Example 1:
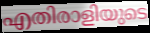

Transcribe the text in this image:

എതിരാളിയുടെ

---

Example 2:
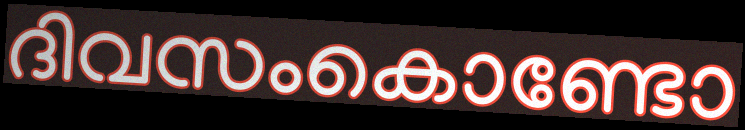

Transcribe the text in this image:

ദിവസംകൊണ്ടോ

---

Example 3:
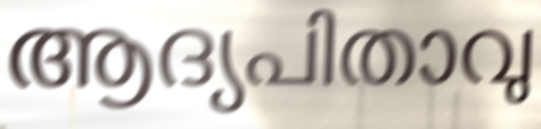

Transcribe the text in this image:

ആദ്യപിതാവു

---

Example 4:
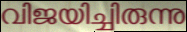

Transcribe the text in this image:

വിജയിച്ചിരുന്നു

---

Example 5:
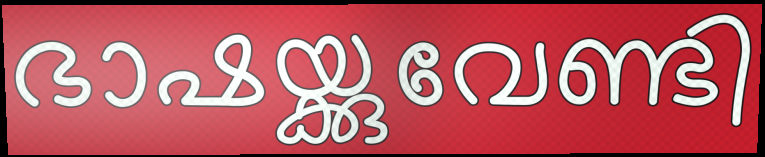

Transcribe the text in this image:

ഭാഷയ്ക്കുവേണ്ടി